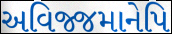
અવિજ્જમાનેપિ